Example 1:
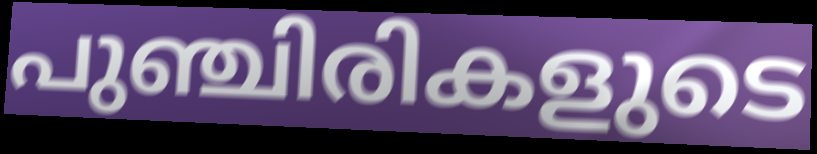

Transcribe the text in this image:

പുഞ്ചിരികളുടെ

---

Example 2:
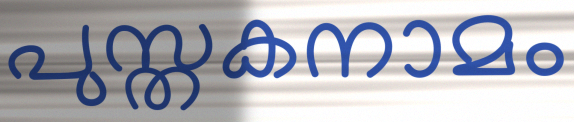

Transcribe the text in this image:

പുസ്തകനാമം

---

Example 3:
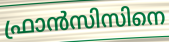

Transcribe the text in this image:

ഫ്രാൻസിസിനെ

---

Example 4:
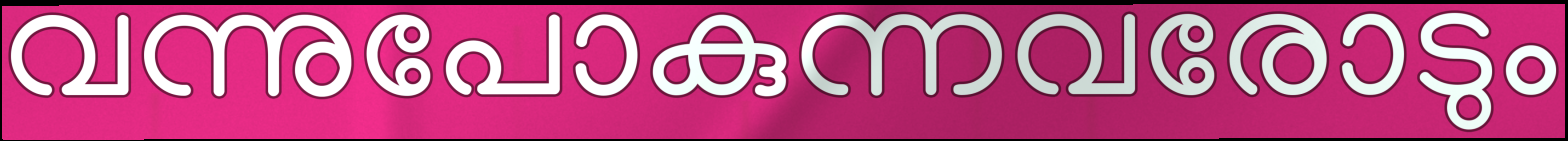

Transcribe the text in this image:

വന്നുപോകുന്നവരോടും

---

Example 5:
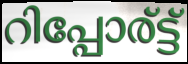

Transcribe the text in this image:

റിപ്പോര്ട്ട്